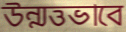
উন্মত্তভাবে